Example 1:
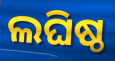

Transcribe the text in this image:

ଲଘିଷ୍ଠ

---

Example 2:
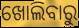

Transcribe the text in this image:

ଖୋଲିବାରୁ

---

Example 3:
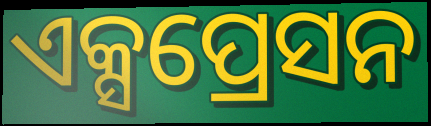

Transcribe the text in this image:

ଏକ୍ସପ୍ରେସନ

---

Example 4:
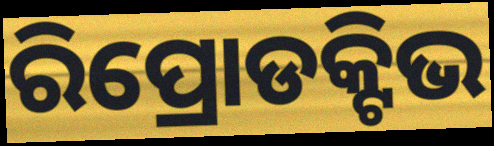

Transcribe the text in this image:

ରିପ୍ରୋଡକ୍ଟିଭ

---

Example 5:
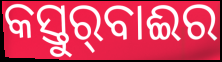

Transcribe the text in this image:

କସ୍ତୁର୍‍ବାଈର